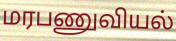
மரபணுவியல்